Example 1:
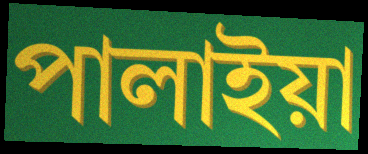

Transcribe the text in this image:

পালাইয়া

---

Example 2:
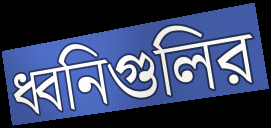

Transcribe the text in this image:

ধ্বনিগুলির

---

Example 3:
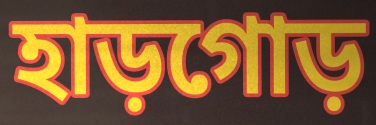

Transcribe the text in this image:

হাড়গোড়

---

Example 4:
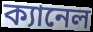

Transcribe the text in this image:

ক্যানেল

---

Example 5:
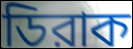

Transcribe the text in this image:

ডিরাক